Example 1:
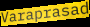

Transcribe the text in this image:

Varaprasad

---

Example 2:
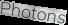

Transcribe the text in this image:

Photons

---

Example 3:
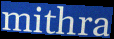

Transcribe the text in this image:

mithra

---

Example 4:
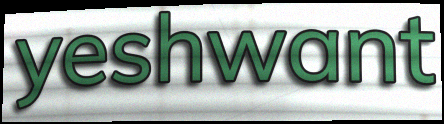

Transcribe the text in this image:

yeshwant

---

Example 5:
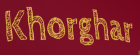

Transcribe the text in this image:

Khorghar